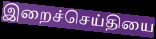
இறைச்செய்தியை